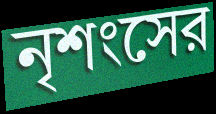
নৃশংসের